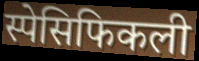
स्पेसिफिकली